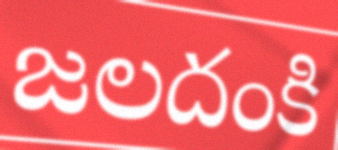
జలదంకి